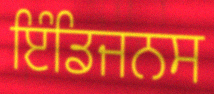
ਇੰਡਿਜਨਸ